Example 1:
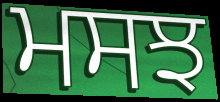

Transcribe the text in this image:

ਮਸਝ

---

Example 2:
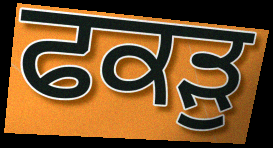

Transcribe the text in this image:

ਫਕੜੁ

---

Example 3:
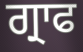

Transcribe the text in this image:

ਗ੍ਰਾਫ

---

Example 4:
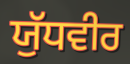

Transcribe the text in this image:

ਯੁੱਧਵੀਰ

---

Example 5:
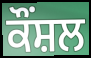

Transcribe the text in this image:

ਕੌਂਸ਼ਲ